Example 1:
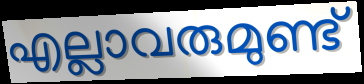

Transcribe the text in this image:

എല്ലാവരുമുണ്ട്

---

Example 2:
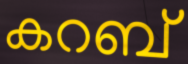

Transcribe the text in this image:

കറബ്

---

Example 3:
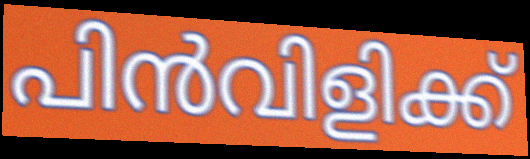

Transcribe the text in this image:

പിൻവിളിക്ക്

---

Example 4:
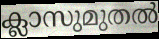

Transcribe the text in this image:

ക്ലാസുമുതൽ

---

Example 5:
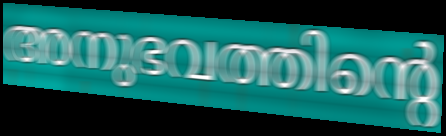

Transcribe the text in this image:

അനുഭവത്തിന്റെ